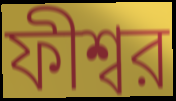
ফীশ্বর